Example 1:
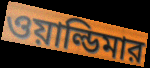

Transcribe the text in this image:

ওয়াল্ডিমার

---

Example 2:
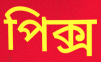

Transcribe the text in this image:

পিক্স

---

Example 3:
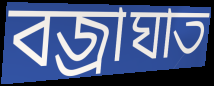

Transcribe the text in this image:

বজ্রাঘাত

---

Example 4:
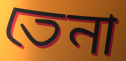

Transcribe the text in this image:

তেনা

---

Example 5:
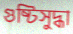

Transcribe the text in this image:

গুষ্টিসুদ্ধা